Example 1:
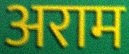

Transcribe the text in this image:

अराम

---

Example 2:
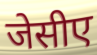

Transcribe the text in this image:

जेसीए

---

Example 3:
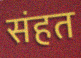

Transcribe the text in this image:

संहत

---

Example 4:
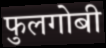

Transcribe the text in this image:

फुलगोबी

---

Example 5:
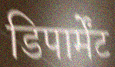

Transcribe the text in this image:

डिपार्मेंट